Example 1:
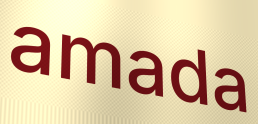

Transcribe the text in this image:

amada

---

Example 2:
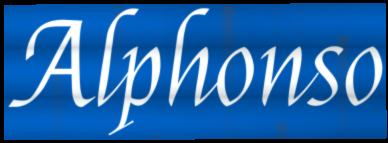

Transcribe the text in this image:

Alphonso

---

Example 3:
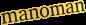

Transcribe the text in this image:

manoman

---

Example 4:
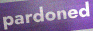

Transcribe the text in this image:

pardoned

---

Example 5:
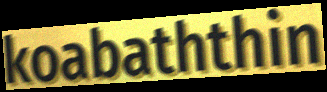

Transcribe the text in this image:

koabaththin